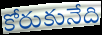
కోరుకునేది